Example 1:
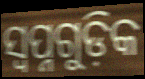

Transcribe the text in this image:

ସ୍ଵପ୍ନଗୁଡ଼ିକ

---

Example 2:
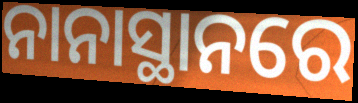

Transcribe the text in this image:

ନାନାସ୍ଥାନରେ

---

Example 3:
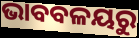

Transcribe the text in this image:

ଭାବବଳୟରୁ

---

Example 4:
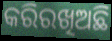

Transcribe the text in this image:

କରିରଖିଅଛି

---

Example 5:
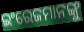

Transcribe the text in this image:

ଇଂରେଜମାନଙ୍କୁ